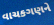
વાચકગણને